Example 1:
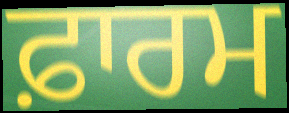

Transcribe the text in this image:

ਫ਼ਾਰਮ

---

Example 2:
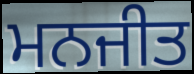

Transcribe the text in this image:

ਮਨਜੀਤ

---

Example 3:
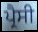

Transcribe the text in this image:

ਪ੍ਰੈਸੀ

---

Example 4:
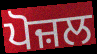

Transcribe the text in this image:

ਪੋਜ਼ਲ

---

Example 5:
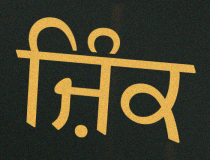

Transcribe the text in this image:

ਜ਼ਿੰਕ